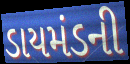
ડાયમંડની